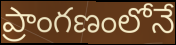
ప్రాంగణంలోనే